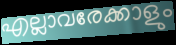
എല്ലാവരേക്കാളും